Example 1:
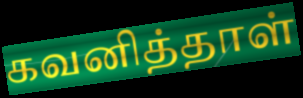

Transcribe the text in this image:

கவனித்தாள்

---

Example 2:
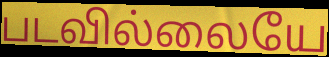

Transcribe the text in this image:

படவில்லையே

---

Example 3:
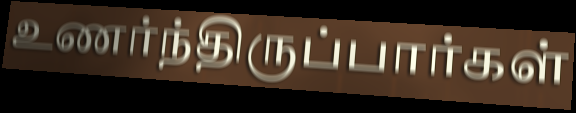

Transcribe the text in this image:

உணர்ந்திருப்பார்கள்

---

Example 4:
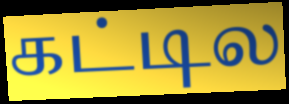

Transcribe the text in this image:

கட்டில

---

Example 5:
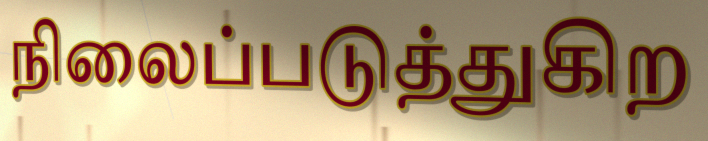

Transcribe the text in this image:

நிலைப்படுத்துகிற